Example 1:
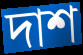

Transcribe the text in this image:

দাশ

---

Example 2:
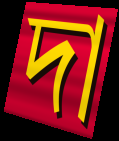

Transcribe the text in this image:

দা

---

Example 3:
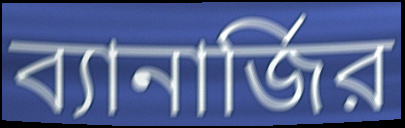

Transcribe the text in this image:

ব্যানার্জির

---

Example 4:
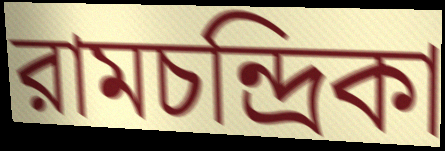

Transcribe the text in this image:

রামচন্দ্রিকা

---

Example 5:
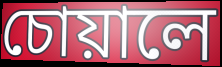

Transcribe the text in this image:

চোয়ালে